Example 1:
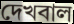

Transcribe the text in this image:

দেখবাল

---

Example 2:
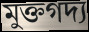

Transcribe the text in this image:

মুক্তগদ্য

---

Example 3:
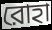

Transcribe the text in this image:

রোহা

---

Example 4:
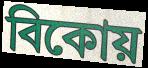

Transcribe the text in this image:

বিকোয়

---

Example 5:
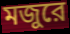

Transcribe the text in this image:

মজুরে